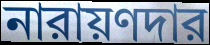
নারায়ণদার